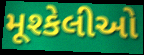
મૂશ્કેલીઓ